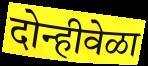
दोन्हीवेळा